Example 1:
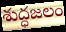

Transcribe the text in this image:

శుద్ధజలం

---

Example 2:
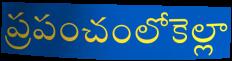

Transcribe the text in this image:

ప్రపంచంలోకెల్లా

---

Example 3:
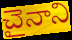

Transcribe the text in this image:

చైనాని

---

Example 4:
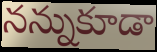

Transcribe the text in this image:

నన్నుకూడా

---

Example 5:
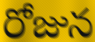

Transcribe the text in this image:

రోజున